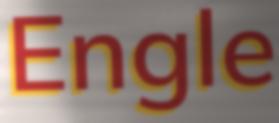
Engle